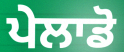
ਪੇਲਾਡੋ